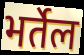
भर्तेल